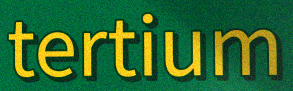
tertium